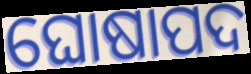
ଘୋଷାପଦ